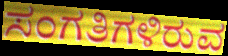
ಸಂಗತಿಗಳಿರುವ